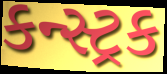
કન્સ્ટ્રક